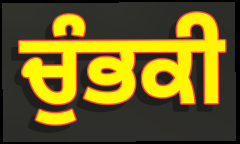
ਚੁੰਭਕੀ